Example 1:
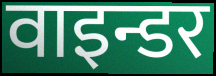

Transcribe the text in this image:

वाइन्डर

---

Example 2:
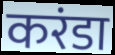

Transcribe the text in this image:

करंडा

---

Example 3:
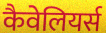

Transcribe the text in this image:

कैवेलियर्स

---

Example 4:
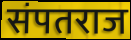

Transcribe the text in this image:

संपतराज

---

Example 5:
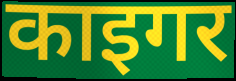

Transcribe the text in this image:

काइगर